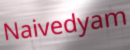
Naivedyam